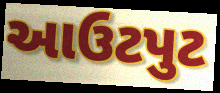
આઉટપુટ